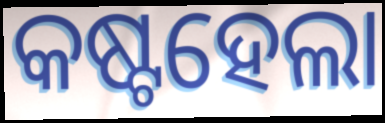
କଷ୍ଟହେଲା